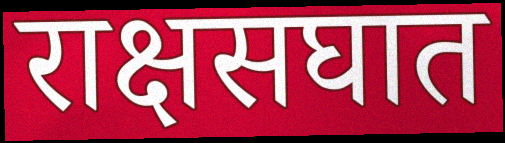
राक्षसघात